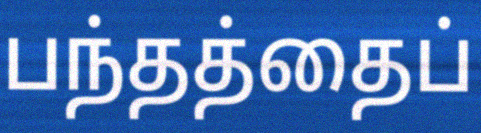
பந்தத்தைப்